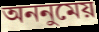
অননুমেয়